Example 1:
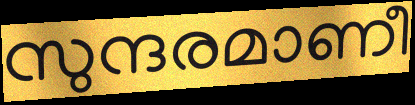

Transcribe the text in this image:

സുന്ദരമാണീ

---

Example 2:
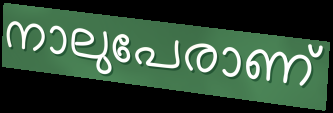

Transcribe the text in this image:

നാലുപേരാണ്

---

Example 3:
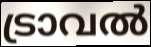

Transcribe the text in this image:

ട്രാവൽ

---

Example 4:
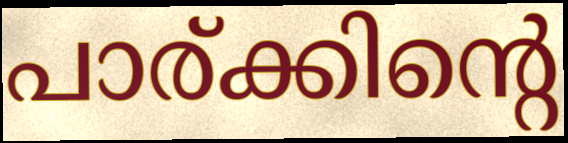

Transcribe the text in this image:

പാര്ക്കിന്റെ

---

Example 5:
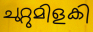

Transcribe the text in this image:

ചുറ്റുമിളകി